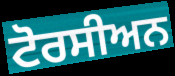
ਟੋਰਸੀਅਨ